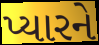
પ્યારને